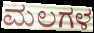
ಮಲಗಳ